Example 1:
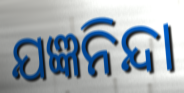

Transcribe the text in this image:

ଯଜ୍ଞନିନ୍ଦା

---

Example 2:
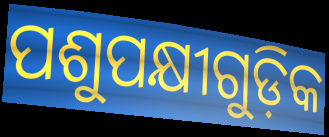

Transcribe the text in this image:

ପଶୁପକ୍ଷୀଗୁଡ଼ିକ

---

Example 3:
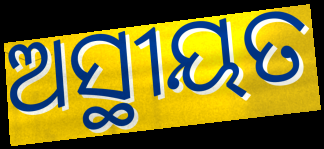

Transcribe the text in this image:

ଅସ୍ଥୀୟତ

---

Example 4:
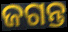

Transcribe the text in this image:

ଜଗନ୍ତ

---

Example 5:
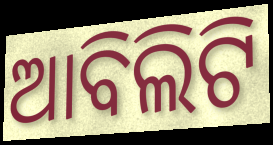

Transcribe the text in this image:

ଆବିଲିଟି